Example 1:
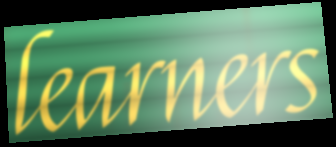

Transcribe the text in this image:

learners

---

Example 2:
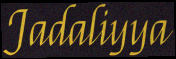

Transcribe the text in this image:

Jadaliyya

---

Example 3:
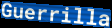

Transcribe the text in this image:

Guerrilla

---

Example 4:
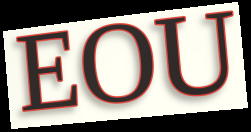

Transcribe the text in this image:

EOU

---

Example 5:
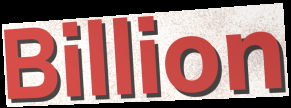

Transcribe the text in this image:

Billion